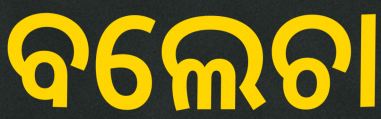
ବଲେଚା